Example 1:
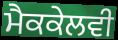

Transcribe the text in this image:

ਮੈਕਕੇਲਵੀ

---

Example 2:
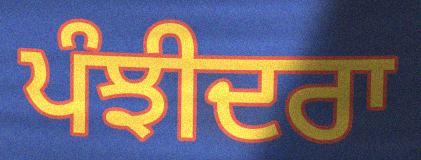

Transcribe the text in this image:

ਪੰਝੀਦਰਾ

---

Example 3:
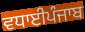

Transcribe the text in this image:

ਵਧਾਈਪੰਜਾਬ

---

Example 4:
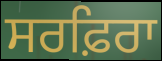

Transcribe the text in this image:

ਸਰਫ਼ਿਰਾ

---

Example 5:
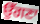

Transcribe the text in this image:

ਉੱਗਣਾ